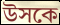
উসকে